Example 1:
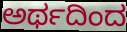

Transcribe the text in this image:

ಅರ್ಥದಿಂದ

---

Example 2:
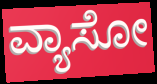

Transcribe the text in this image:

ವ್ಯಾಸೋ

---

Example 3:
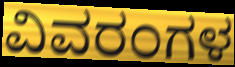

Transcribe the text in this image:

ವಿವರಂಗಳ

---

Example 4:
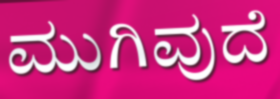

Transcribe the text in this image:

ಮುಗಿವುದೆ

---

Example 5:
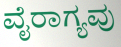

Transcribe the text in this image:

ವೈರಾಗ್ಯವು